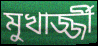
মুখার্জ্জী